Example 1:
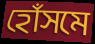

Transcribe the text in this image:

হোঁসমে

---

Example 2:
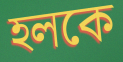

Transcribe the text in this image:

হলকে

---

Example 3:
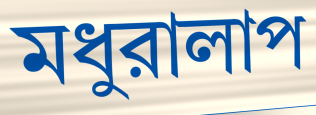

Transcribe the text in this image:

মধুরালাপ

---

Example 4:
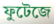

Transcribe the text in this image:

ফুটেজে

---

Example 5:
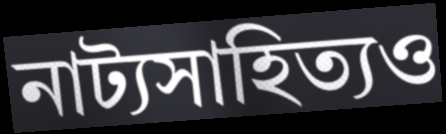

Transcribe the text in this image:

নাট্যসাহিত্যও